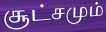
சூட்சமும்